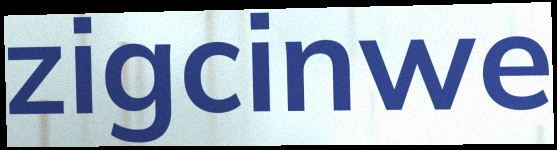
zigcinwe